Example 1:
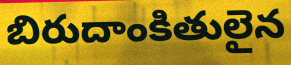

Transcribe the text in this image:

బిరుదాంకితులైన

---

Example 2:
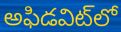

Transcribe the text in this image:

అఫిడవిట్‌లో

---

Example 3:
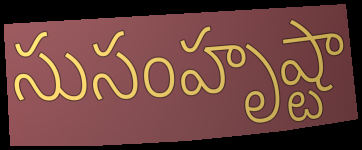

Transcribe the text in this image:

సుసంహృష్టా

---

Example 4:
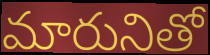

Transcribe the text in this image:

మారునితో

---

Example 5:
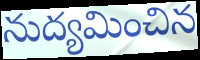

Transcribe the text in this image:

నుద్యమించిన